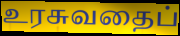
உரசுவதைப்